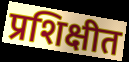
प्रशिक्षीत